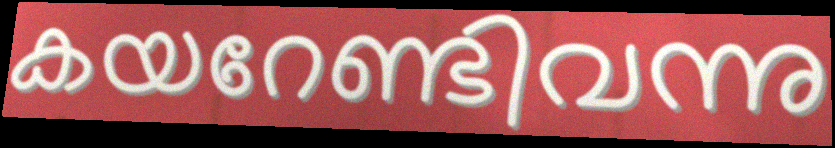
കയറേണ്ടിവന്നു